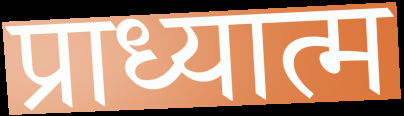
प्राध्यात्म